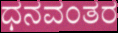
ಧನವಂತರ